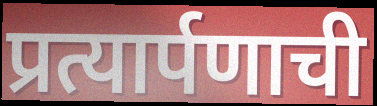
प्रत्यार्पणाची